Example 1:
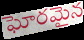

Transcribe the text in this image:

ఘోరమైన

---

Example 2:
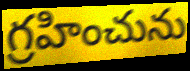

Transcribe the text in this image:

గ్రహించును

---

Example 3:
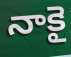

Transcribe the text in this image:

నాకై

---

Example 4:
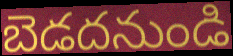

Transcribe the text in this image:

బెడదనుండి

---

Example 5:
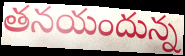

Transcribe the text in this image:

తనయందున్న